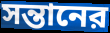
সন্তানের